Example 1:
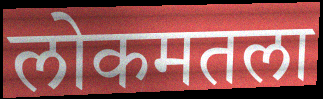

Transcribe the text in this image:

लोकमतला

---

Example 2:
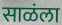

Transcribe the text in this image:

साळंला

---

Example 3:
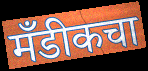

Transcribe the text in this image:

मँडीकचा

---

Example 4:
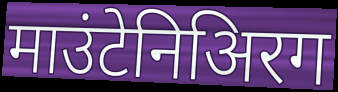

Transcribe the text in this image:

माउंटेनिअिरग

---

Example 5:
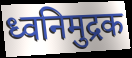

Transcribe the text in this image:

ध्वनिमुद्रक